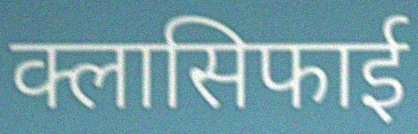
क्लासिफाई